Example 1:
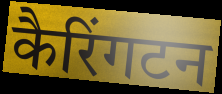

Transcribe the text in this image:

कैरिंगटन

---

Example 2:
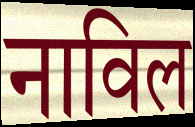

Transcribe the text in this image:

नाविल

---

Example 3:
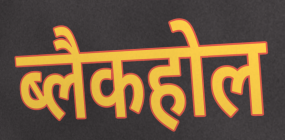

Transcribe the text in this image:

ब्लैकहोल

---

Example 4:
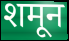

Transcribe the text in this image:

शमून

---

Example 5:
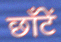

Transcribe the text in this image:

छाँटें